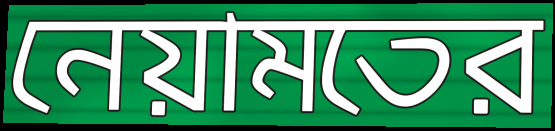
নেয়ামতের